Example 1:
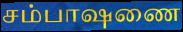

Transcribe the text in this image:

சம்பாஷணை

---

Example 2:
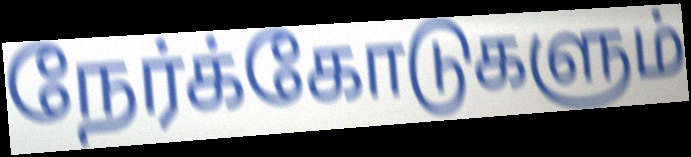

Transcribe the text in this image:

நேர்க்கோடுகளும்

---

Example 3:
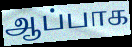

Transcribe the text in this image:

ஆப்பாக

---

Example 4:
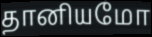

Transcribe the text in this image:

தானியமோ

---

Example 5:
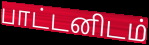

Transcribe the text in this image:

பாட்டனிடம்